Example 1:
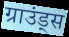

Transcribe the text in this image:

ग्राउंड्स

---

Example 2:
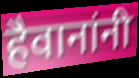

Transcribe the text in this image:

हैवानांनी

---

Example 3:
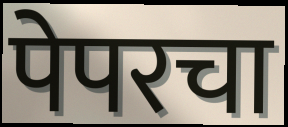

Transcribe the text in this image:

पेपरचा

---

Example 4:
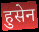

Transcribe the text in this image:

हुसेन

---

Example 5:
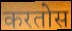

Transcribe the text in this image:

करतोस